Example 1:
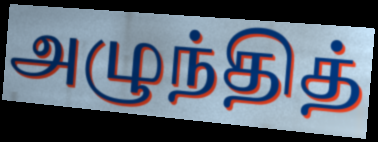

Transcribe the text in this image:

அழுந்தித்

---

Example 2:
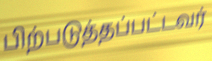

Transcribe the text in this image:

பிற்படுத்தப்பட்டவர்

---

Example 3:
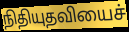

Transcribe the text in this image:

நிதியுதவியைச்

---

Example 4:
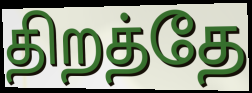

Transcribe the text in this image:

திறத்தே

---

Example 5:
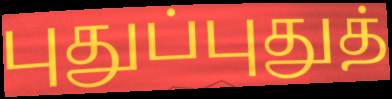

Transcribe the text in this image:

புதுப்புதுத்